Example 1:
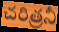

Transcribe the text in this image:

చరిత్రనీ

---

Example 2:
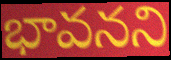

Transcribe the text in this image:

భావనని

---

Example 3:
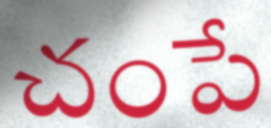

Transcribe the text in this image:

చంపే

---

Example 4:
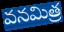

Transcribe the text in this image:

వనమిత్ర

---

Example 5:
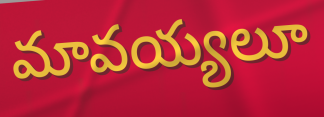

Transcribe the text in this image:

మావయ్యలూ